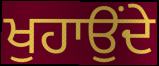
ਖੁਹਾਉਂਦੇ